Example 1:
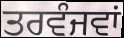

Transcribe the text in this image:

ਤਰਵੰਜਵਾਂ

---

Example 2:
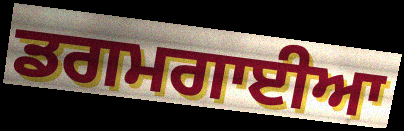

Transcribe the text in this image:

ਡਗਮਗਾਈਆ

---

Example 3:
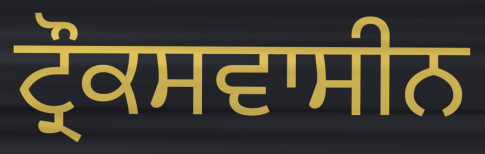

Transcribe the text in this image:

ਟ੍ਰੌਕਸਵਾਸੀਨ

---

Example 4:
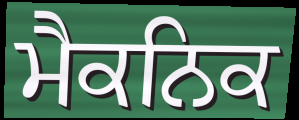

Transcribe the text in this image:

ਮੈਕਨਿਕ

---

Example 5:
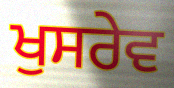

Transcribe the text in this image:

ਖੁਸਰੇਵ